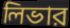
লিভার